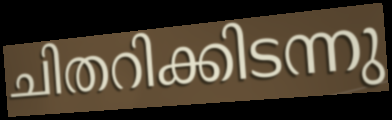
ചിതറിക്കിടന്നു